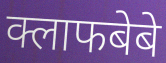
क्लाफबेबे